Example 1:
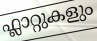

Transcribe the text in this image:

ഫ്ലാറ്റുകളും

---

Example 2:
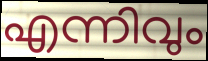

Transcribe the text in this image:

എന്നിവും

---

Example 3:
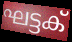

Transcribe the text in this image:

ഘട്ടക്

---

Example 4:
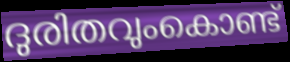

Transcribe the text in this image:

ദുരിതവുംകൊണ്ട്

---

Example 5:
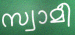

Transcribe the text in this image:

സ്വാമീ